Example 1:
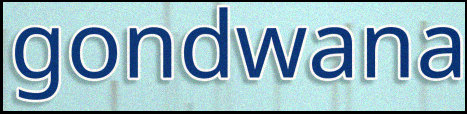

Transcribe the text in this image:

gondwana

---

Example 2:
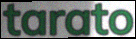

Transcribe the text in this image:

tarato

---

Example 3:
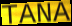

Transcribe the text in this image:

TANA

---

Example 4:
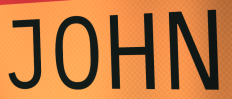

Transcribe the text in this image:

JOHN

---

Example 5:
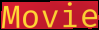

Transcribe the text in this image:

Movie